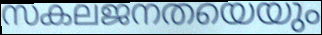
സകലജനതയെയും